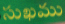
సుఖము